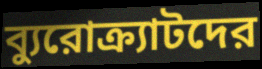
ব্যুরোক্র্যাটদের